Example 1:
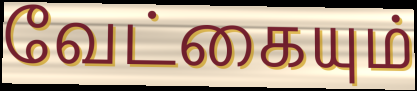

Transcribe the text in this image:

வேட்கையும்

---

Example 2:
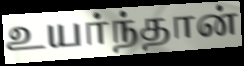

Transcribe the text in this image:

உயர்ந்தான்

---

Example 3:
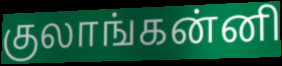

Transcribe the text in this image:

குலாங்கன்னி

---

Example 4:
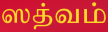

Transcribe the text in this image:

ஸத்வம்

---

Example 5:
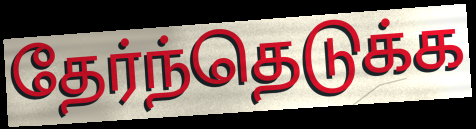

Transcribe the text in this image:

தேர்ந்தெடுக்க